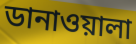
ডানাওয়ালা